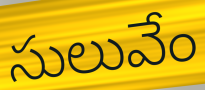
సులువేం